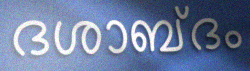
ദശാബ്ദം